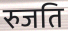
रुजति